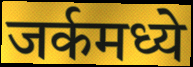
जर्कमध्ये